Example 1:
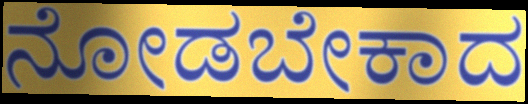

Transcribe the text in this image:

ನೋಡಬೇಕಾದ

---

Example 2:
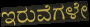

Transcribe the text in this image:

ಇರುವೆಗಳೇ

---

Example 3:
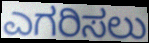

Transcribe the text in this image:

ಎಗರಿಸಲು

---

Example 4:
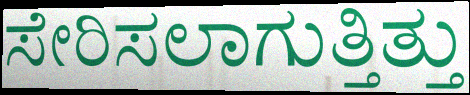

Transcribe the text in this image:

ಸೇರಿಸಲಾಗುತ್ತಿತ್ತು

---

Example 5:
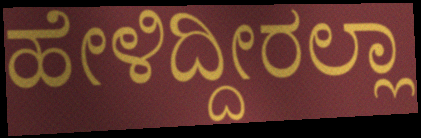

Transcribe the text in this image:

ಹೇಳಿದ್ದೀರಲ್ಲಾ